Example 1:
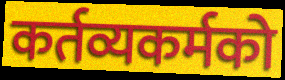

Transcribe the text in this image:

कर्तव्यकर्मको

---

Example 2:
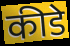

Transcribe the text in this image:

कीडे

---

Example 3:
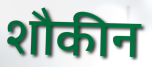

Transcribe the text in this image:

शौकीन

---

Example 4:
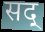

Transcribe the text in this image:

सद्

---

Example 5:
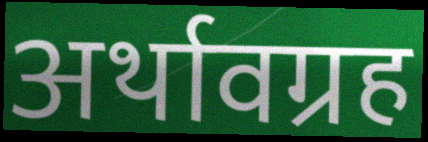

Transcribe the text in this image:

अर्थावग्रह